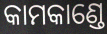
କାମକାଣ୍ଡେ